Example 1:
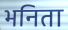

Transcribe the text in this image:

भनिता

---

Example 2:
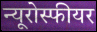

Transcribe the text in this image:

न्यूरोस्फीयर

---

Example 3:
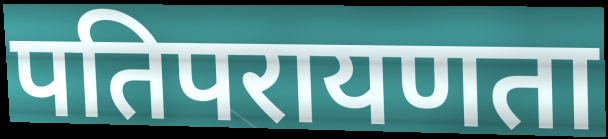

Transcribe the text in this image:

पतिपरायणता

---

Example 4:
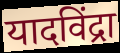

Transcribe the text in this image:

यादविंद्रा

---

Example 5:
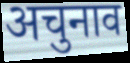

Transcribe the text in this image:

अचुनाव